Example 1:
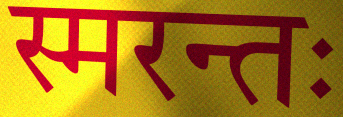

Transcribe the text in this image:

स्मरन्तः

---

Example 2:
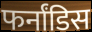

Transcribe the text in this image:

फर्नांडिस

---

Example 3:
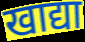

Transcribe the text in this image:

खाद्या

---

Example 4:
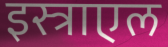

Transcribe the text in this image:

इस्त्राएल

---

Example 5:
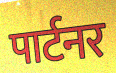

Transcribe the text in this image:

पार्टनर